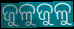
ଜୁଳୁଜୁଳୁ